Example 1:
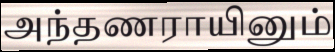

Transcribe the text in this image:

அந்தணராயினும்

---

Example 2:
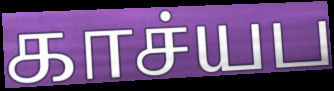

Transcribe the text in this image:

காச்யப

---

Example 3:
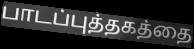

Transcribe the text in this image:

பாடப்புத்தகத்தை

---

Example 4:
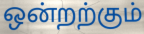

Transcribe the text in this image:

ஒன்றற்கும்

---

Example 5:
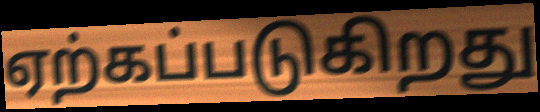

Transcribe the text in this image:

ஏற்கப்படுகிறது